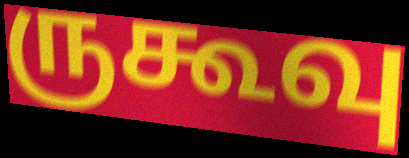
ருகூவு